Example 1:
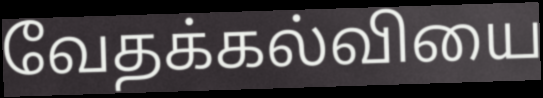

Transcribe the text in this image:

வேதக்கல்வியை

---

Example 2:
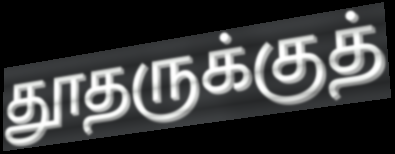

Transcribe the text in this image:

தூதருக்குத்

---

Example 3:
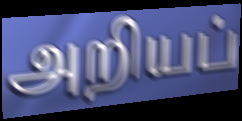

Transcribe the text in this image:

அறியப்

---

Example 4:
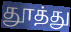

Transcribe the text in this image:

தூத்து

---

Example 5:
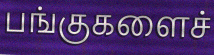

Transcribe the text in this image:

பங்குகளைச்